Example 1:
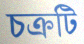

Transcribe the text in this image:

চক্রটি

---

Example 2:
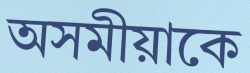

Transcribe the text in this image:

অসমীয়াকে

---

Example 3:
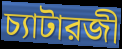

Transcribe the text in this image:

চ্যাটারজী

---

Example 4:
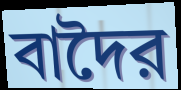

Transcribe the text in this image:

বাদৈর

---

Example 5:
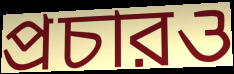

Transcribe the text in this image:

প্রচারও